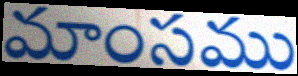
మాంసము